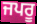
ਜਪਰੂ